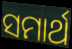
ସମାର୍ଥ